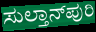
ಸುಲ್ತಾನ್‌ಪುರಿ